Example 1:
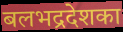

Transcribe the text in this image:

बलभद्रदेशका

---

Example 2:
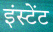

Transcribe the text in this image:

इंस्टेंट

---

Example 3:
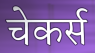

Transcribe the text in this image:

चेकर्स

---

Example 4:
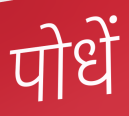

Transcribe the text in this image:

पोधें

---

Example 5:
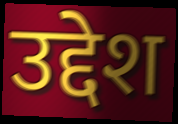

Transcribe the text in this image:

उद्देश